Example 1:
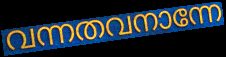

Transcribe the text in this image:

വന്നതവനാന്നേ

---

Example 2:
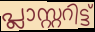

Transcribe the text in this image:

പ്ലാസ്റ്ററിട്ട്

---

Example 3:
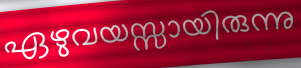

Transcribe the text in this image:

ഏഴുവയസ്സായിരുന്നു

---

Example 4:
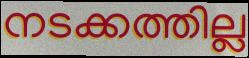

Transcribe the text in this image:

നടക്കത്തില്ല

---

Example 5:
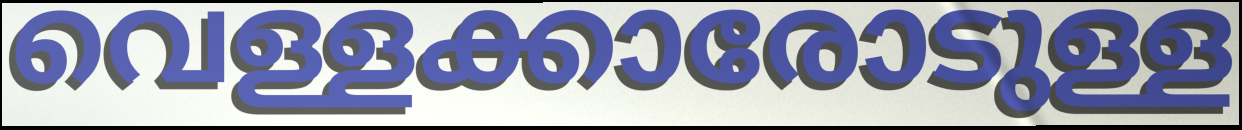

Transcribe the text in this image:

വെള്ളക്കാരോടുള്ള